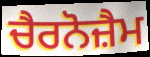
ਚੈਰਨੋਜ਼ੈਮ